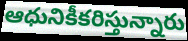
ఆధునికీకరిస్తున్నారు